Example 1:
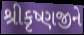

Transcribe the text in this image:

શ્રીકૃષ્ણજીને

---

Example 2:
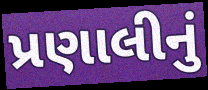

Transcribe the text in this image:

પ્રણાલીનું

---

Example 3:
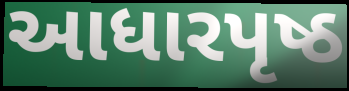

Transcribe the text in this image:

આધારપૃષ્ઠ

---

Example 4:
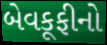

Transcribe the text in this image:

બેવકૂફીનો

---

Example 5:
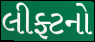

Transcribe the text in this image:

લીફ્ટનો